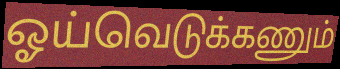
ஓய்வெடுக்கணும்